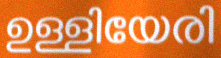
ഉള്ളിയേരി